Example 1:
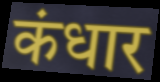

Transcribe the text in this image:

कंधार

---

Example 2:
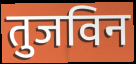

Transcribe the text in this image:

तुजविन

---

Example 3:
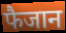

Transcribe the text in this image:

फैजान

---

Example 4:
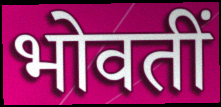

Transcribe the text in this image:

भोवतीं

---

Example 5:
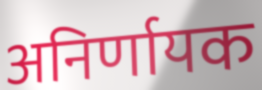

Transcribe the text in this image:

अनिर्णायक